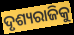
ଦୃଶ୍ୟରାଜିକୁ